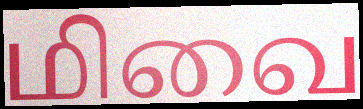
மிவை